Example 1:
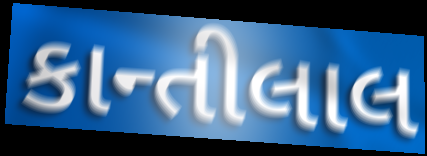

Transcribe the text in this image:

કાન્તીલાલ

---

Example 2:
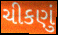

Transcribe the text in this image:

ચીકણું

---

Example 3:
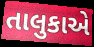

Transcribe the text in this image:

તાલુકાએ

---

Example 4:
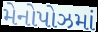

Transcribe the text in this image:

મેનોપોઝમાં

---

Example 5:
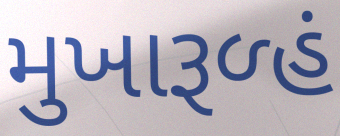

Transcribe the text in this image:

મુખારૂળ્હં